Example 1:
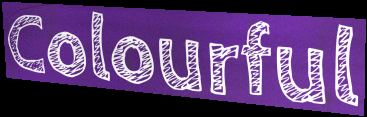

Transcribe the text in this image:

Colourful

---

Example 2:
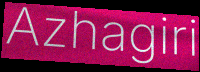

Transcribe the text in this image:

Azhagiri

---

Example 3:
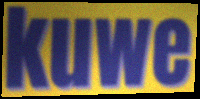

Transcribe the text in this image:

kuwe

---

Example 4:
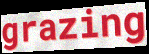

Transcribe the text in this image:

grazing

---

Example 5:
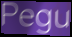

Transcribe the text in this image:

Pegu